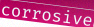
corrosive